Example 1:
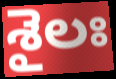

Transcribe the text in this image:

శైలః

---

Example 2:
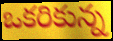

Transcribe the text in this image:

ఒకరికున్న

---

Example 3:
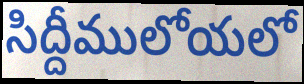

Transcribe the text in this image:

సిద్దీములోయలో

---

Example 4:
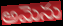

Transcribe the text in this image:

అమెను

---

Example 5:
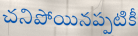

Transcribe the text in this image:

చనిపోయినప్పటికీ